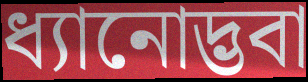
ধ্যানোদ্ভবা